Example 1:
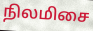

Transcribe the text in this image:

நிலமிசை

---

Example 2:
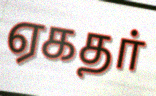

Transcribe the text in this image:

ஏகதர்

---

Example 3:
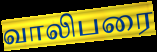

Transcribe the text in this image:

வாலிபரை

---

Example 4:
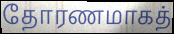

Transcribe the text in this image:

தோரணமாகத்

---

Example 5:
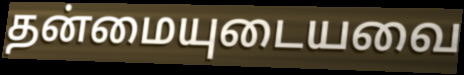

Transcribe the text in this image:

தன்மையுடையவை